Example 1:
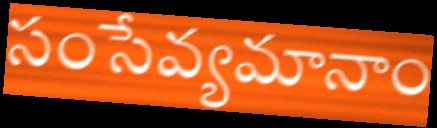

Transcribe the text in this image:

సంసేవ్యమానాం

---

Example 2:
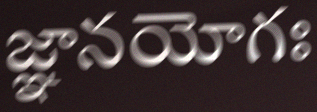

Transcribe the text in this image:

జ్ఞానయోగః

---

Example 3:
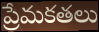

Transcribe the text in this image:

ప్రేమకతలు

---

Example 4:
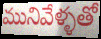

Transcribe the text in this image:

మునివేళ్ళతో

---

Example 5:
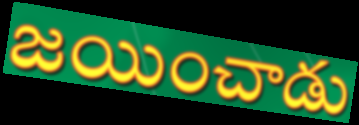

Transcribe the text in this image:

జయించాడు